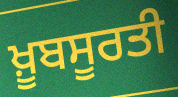
ਖ਼ੂਬਸੂਰਤੀ